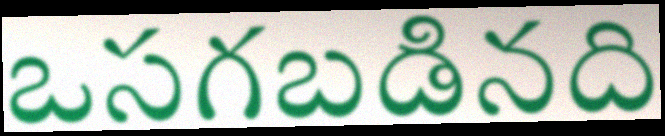
ఒసగబడినది